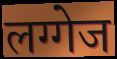
लग्गेज